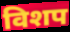
विशप